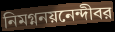
নিমগ্ননয়নেন্দীবর